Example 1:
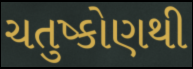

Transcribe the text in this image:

ચતુષ્કોણથી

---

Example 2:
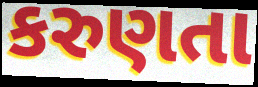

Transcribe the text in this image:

કરુણતા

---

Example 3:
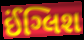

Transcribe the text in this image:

ઈંગ્લિશ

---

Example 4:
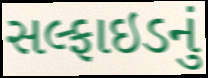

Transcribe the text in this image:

સલ્ફાઇડનું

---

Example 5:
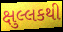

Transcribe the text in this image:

ક્ષુલ્લકથી